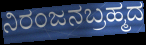
ನಿರಂಜನಬ್ರಹ್ಮದ